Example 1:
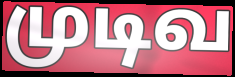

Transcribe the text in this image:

முடிவ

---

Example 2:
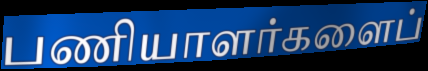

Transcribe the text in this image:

பணியாளர்களைப்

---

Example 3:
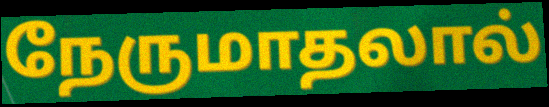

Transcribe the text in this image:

நேருமாதலால்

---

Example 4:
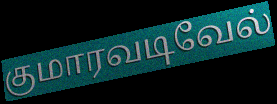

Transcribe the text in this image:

குமாரவடிவேல்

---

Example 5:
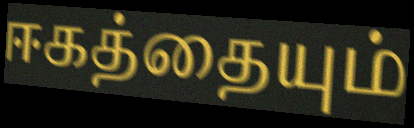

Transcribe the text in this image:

ஈகத்தையும்